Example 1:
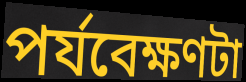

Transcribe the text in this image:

পর্যবেক্ষণটা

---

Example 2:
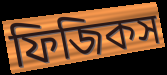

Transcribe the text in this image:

ফিজিকস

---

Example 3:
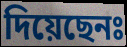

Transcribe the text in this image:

দিয়েছেনঃ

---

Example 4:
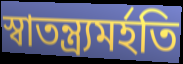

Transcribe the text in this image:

স্বাতন্ত্র্যমর্হতি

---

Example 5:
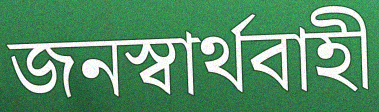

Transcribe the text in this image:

জনস্বার্থবাহী